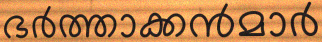
ഭർത്താക്കൻമാർ